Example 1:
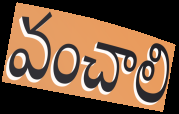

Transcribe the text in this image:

వంచాలి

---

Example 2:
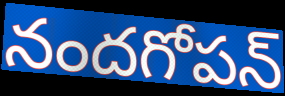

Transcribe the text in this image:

నందగోపన్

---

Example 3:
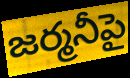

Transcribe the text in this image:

జర్మనీపై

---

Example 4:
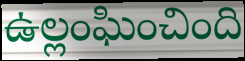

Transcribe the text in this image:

ఉల్లంఘించింది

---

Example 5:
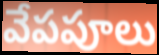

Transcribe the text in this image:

వేపపూలు